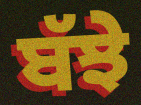
ਬੱਝੇ